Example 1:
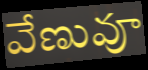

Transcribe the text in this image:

వేణువూ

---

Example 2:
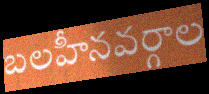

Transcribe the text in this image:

బలహీనవర్గాల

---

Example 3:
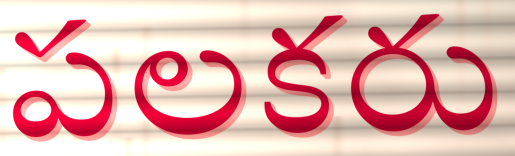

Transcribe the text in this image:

పలకరు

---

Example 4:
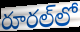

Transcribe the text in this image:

రూరల్‌లో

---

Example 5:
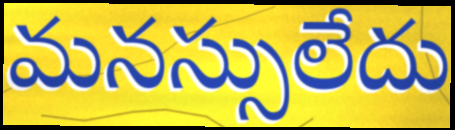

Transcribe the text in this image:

మనస్సులేదు